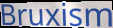
Bruxism